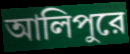
আলিপুরে